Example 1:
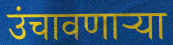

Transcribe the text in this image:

उंचावणाऱ्या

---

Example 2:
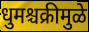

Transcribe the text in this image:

धुमश्चक्रीमुळे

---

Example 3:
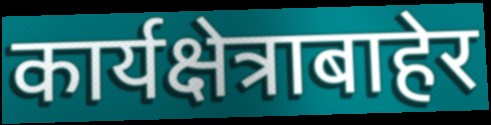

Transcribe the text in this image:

कार्यक्षेत्राबाहेर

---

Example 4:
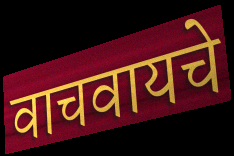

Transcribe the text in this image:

वाचवायचे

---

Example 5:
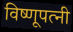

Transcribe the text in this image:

विष्णूपत्नी